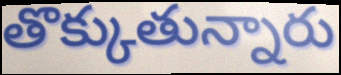
తొక్కుతున్నారు